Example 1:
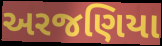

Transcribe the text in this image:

અરજણિયા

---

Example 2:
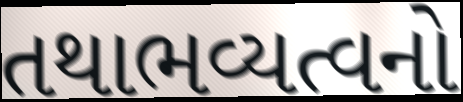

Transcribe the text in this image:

તથાભવ્યત્વનો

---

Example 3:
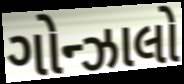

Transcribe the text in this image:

ગોન્ઝાલો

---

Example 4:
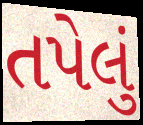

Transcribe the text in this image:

તપેલું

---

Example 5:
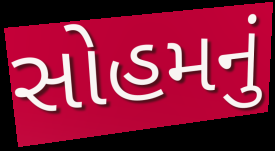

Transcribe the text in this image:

સોહમનું